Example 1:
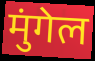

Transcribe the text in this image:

मुंगेल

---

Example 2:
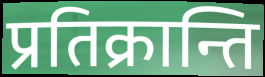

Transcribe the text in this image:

प्रतिक्रान्ति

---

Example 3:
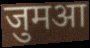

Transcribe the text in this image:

जुमआ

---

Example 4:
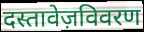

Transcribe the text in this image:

दस्तावेज़विवरण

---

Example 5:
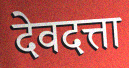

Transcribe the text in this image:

देवदत्ता